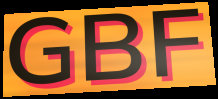
GBF